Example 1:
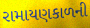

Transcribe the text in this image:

રામાયણકાળની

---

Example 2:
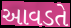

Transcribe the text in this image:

આવડતે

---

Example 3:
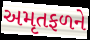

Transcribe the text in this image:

અમૃતફળને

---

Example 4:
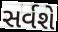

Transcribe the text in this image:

સર્વશે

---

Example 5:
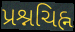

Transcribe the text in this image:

પ્રશ્નચિહ્ન